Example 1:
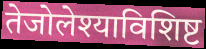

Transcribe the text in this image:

तेजोलेश्याविशिष्ट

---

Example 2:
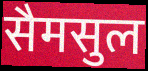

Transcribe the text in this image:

सैमसुल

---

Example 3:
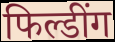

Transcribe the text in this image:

फिल्डींग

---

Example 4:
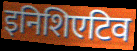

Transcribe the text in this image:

इनिशिएटिव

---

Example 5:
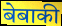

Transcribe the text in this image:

बेबाकी